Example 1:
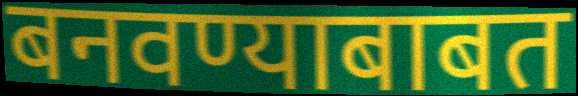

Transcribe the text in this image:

बनवण्याबाबत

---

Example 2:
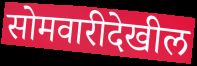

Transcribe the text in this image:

सोमवारीदेखील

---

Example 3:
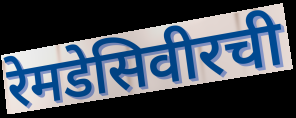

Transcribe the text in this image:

रेमडेसिवीरची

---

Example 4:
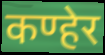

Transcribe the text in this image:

कण्हेर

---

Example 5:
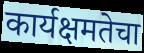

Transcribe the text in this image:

कार्यक्षमतेचा